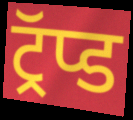
ट्रॅप्ड